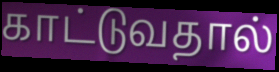
காட்டுவதால்